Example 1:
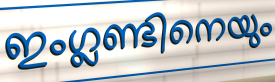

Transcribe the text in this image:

ഇംഗ്ലണ്ടിനെയും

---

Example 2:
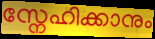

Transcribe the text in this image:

സ്നേഹിക്കാനും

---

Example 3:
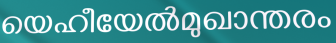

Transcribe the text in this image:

യെഹീയേൽമുഖാന്തരം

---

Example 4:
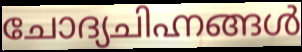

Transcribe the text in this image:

ചോദ്യചിഹ്നങ്ങൾ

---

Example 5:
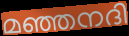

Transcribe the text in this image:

മഞ്ഞനദി